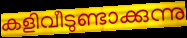
കളിവീടുണ്ടാക്കുന്നു